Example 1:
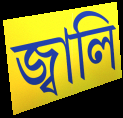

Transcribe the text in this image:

জ্বালি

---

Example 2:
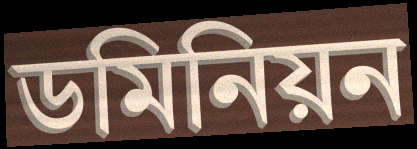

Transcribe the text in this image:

ডমিনিয়ন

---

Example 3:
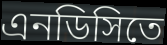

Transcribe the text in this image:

এনডিসিতে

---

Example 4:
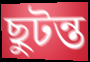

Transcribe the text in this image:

ছুটন্ত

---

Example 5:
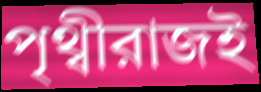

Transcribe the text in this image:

পৃথ্বীরাজই